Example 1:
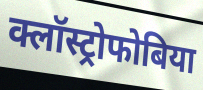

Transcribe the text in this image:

क्लॉस्ट्रोफोबिया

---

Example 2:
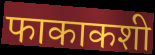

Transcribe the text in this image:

फाकाकशी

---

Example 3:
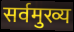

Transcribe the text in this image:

सर्वमुख्य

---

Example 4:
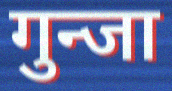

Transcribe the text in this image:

गुन्जा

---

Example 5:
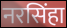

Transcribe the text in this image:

नरसिंहा